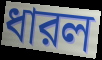
ধারল